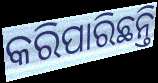
କରିପାରିଛନ୍ତି